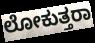
ಲೋಕುತ್ತರಾ